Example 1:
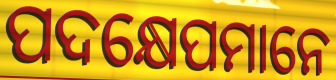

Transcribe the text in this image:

ପଦକ୍ଷେପମାନେ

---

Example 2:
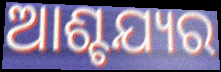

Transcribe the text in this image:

ଆଶ୍ଚଯ୍ୟର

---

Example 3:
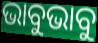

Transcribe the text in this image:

ଭାବୁଭାବୁ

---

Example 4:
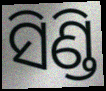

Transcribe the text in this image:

ସିଣ୍ଡି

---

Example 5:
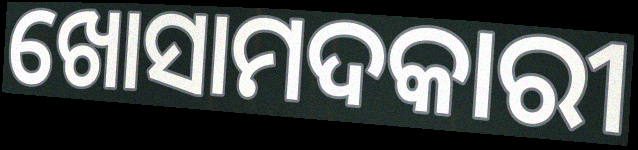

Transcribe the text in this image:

ଖୋସାମଦକାରୀ